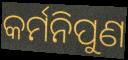
କର୍ମନିପୁଣ